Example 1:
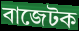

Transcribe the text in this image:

বাজেটক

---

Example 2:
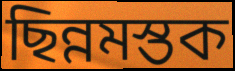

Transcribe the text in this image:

ছিন্নমস্তক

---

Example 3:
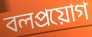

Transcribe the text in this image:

বলপ্ৰয়োগ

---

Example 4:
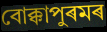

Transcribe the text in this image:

বোক্কাপুৰমৰ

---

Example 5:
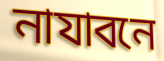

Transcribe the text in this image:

নাযাবনে